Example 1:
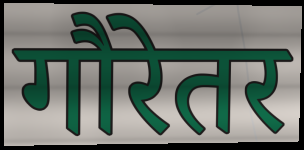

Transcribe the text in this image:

गौरेतर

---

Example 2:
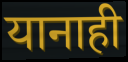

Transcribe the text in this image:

यानाही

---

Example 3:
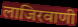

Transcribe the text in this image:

लाजिरवाणी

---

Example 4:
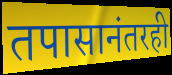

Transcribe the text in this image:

तपासानंतरही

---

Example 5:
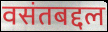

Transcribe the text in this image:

वसंतबद्दल